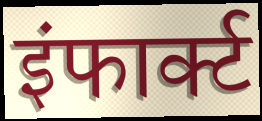
इंफार्क्ट